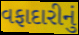
વફાદારીનું